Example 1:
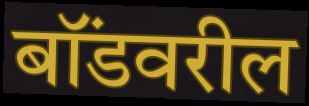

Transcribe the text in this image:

बॉंडवरील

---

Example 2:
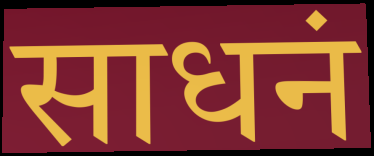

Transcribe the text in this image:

साधनं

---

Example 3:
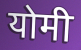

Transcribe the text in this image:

योमी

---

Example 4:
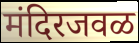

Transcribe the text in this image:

मंदिरजवळ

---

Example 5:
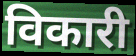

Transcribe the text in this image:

विकारी